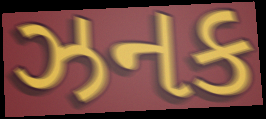
ઝનક